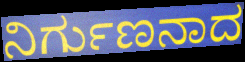
ನಿರ್ಗುಣನಾದ